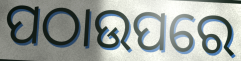
ପଠାଉପରେ